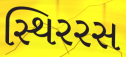
સ્થિરરસ